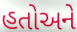
હતોઅને